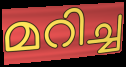
മറിച്ച